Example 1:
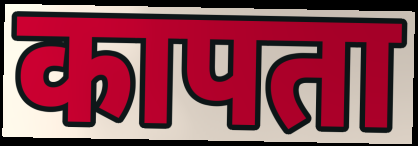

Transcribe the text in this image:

कापता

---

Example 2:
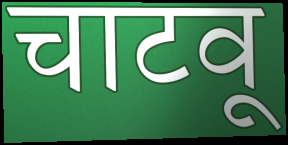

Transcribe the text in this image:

चाटवू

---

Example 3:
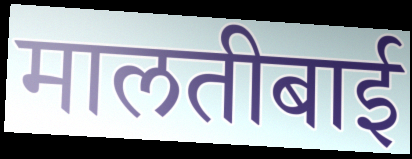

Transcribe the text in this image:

मालतीबाई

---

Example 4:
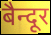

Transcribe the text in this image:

बैन्दूर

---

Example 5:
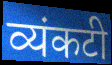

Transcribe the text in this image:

व्यंकटी